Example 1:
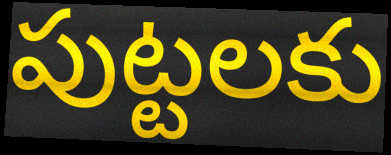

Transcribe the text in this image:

పుట్టలకు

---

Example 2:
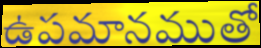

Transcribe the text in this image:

ఉపమానముతో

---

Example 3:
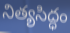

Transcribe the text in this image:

నిత్యసిద్ధం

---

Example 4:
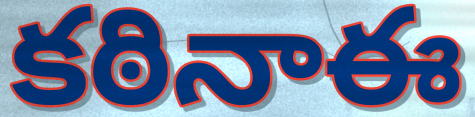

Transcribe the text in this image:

కఠినాఈ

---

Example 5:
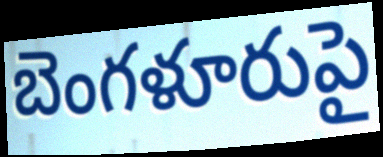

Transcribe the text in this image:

బెంగళూరుపై